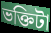
ভক্তিটা